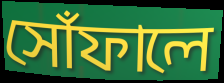
সোঁফালে